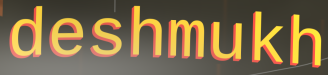
deshmukh